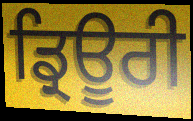
ਡ੍ਰਿਊਰੀ